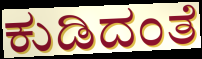
ಕುಡಿದಂತೆ